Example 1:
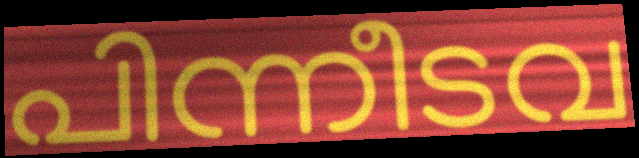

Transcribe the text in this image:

പിന്നീടവ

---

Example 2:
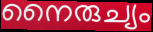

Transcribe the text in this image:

നൈരുച്യം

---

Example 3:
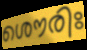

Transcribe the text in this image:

ശൌരിഃ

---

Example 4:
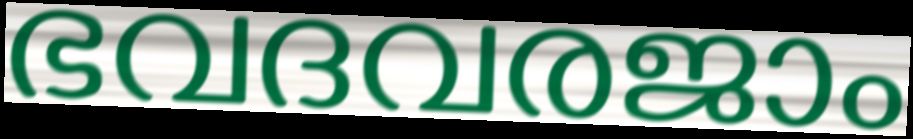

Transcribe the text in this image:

ഭവദവരജാം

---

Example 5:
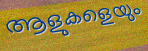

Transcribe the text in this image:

ആളുകളെയും